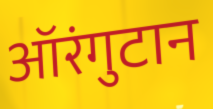
ऑरंगुटान